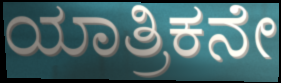
ಯಾತ್ರಿಕನೇ